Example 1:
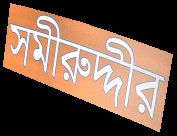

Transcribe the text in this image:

সমীরুদ্দীর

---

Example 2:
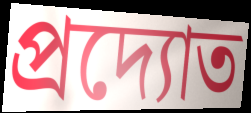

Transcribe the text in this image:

প্রদ্যোত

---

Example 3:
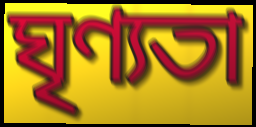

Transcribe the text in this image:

ঘৃণ্যতা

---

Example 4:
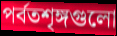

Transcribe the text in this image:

পর্বতশৃঙ্গগুলো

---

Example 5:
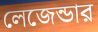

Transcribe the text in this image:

লেজেন্ডার